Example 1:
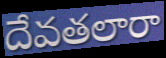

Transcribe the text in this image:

దేవతలారా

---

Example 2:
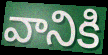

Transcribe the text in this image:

వానికి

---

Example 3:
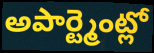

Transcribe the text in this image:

అపార్ట్మెంట్లో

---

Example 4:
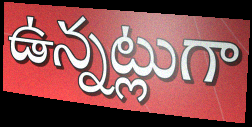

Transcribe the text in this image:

ఉన్నట్లుగా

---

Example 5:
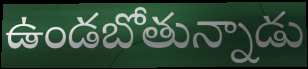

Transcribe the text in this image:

ఉండబోతున్నాడు